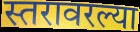
स्तरावरल्या